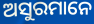
ଅସୁରମାନେ